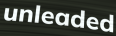
unleaded